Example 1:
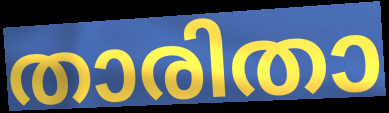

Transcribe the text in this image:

താരിതാ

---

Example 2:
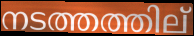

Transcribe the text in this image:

നടത്തത്തില്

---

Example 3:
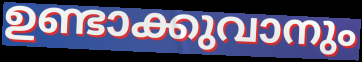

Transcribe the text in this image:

ഉണ്ടാക്കുവാനും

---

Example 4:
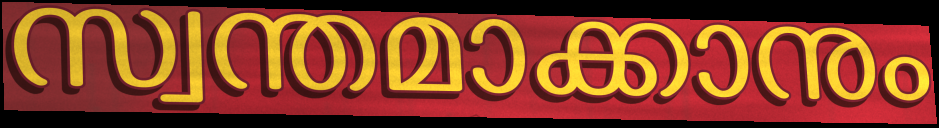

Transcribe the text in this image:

സ്വന്തമാക്കാനും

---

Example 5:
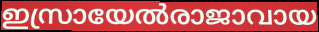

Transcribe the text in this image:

ഇസ്രായേൽരാജാവായ